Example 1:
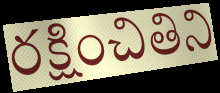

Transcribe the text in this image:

రక్షించితిని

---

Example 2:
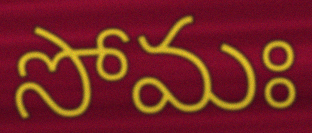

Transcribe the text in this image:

సోమః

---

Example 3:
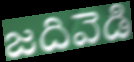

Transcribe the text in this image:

జదివెడి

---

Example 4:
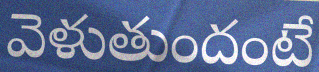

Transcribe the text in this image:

వెళుతుందంటే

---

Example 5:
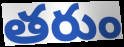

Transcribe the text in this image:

తరుం